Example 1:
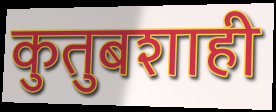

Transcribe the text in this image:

कुतुबशाही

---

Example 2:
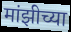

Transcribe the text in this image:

मांझीच्या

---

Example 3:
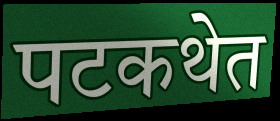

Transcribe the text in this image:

पटकथेत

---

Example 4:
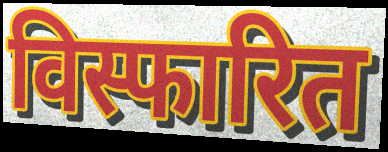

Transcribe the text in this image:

विस्फारित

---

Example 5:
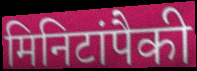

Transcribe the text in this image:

मिनिटांपैकी